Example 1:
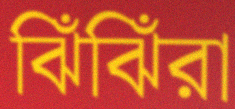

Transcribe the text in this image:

ঝিঁঝিঁরা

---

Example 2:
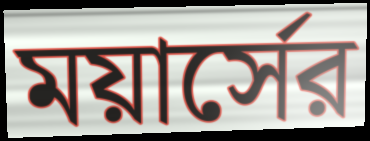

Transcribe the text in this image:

ময়ার্সের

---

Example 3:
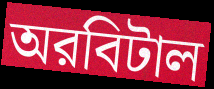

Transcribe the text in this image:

অরবিটাল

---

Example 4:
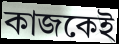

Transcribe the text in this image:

কাজকেই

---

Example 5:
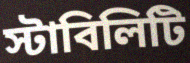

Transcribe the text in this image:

স্টাবিলিটি